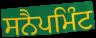
ਸਨੈਪਮਿੰਟ